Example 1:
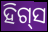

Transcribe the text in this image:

ହିଗ୍‌ସ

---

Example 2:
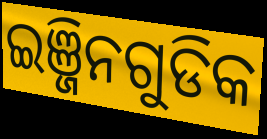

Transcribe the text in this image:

ଇଞ୍ଜିନଗୁଡିକ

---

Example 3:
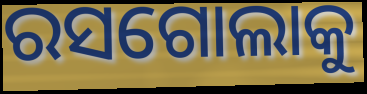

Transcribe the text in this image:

ରସଗୋଲାକୁ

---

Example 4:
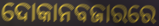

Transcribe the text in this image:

ଦୋକାନବଜାରରେ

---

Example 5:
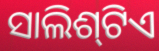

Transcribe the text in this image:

ସାଲିଶ୍‌ଟିଏ